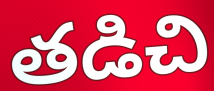
తడిచి